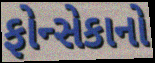
ફોન્સેકાનો